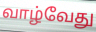
வாழ்வேது